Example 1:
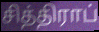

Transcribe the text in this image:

சித்திராப்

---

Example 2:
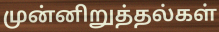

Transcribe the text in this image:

முன்னிறுத்தல்கள்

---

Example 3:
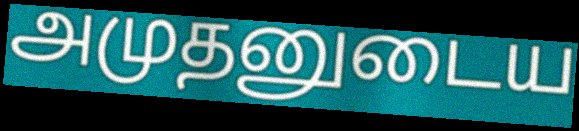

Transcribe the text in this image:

அமுதனுடைய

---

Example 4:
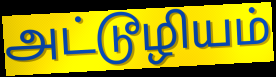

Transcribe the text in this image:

அட்டூழியம்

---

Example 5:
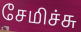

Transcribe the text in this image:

சேமிச்சு